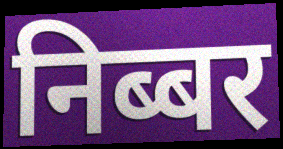
निब्बर